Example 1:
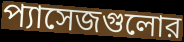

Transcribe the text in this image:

প্যাসেজগুলোর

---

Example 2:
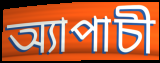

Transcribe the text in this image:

অ্যাপাচী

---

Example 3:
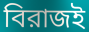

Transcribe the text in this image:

বিরাজই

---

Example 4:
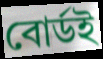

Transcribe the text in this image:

বোর্ডই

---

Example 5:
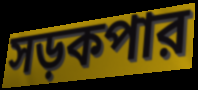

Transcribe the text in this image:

সড়কপার